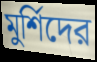
মুর্শিদের